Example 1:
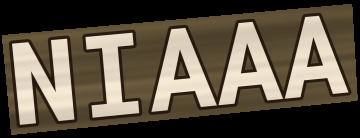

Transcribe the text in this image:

NIAAA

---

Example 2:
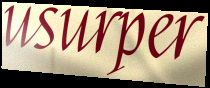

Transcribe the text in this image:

usurper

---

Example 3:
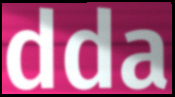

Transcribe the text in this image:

dda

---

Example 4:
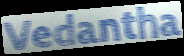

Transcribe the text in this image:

Vedantha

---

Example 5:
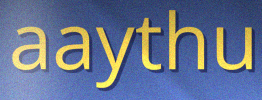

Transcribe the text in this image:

aaythu